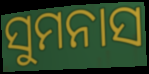
ସୁମନାସ